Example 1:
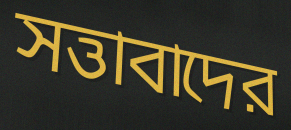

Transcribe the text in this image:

সত্তাবাদের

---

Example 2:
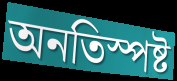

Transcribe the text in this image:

অনতিস্পষ্ট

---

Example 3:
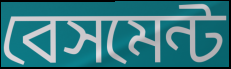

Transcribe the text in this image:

বেসমেন্ট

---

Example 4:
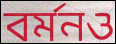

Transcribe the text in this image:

বর্মনও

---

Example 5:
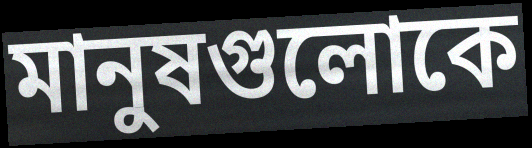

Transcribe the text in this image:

মানুষগুলোকে